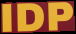
IDP